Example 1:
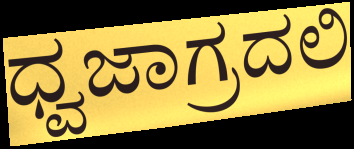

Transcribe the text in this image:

ಧ್ವಜಾಗ್ರದಲಿ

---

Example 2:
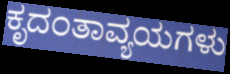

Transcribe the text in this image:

ಕೃದಂತಾವ್ಯಯಗಳು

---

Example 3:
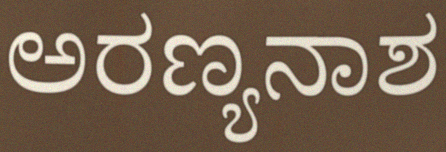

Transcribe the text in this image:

ಅರಣ್ಯನಾಶ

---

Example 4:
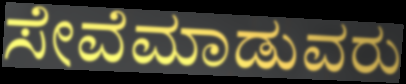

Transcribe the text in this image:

ಸೇವೆಮಾಡುವರು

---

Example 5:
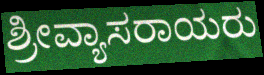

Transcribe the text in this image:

ಶ್ರೀವ್ಯಾಸರಾಯರು